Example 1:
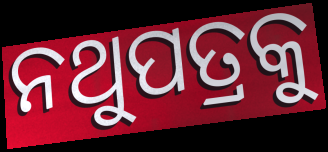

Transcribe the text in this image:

ନଥୁପତ୍ରକୁ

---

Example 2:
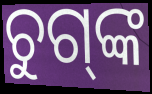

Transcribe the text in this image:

ଚୁଗ୍‌ଙ୍କ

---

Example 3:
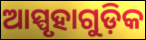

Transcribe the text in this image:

ଆସ୍ପୃହାଗୁଡ଼ିକ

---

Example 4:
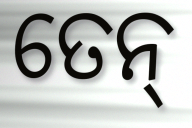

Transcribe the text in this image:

ତେନ୍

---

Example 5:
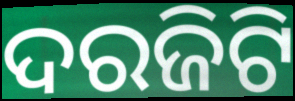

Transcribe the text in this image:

ଦରଜିଟି